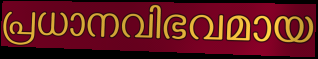
പ്രധാനവിഭവമായ